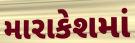
મારાકેશમાં